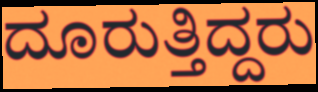
ದೂರುತ್ತಿದ್ದರು